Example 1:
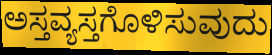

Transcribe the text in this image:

ಅಸ್ತವ್ಯಸ್ತಗೊಳಿಸುವುದು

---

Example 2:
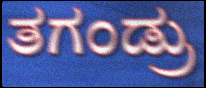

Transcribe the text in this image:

ತಗಂಡ್ರು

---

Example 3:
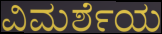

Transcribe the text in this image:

ವಿಮರ್ಶೆಯ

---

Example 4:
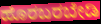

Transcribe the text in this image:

ಹೊರಬರಬೇಡಿ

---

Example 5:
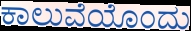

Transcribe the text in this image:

ಕಾಲುವೆಯೊಂದು